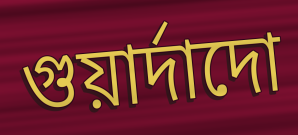
গুয়ার্দাদো